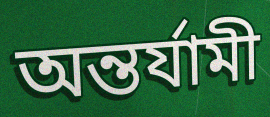
অন্তর্যামী